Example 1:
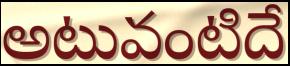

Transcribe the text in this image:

అటువంటిదే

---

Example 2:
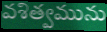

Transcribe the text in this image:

వశిత్వమును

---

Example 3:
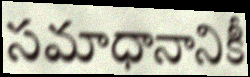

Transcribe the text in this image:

సమాధానానికీ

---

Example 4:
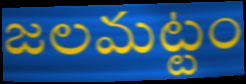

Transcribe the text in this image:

జలమట్టం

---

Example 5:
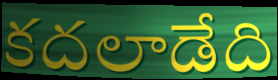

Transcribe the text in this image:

కదలాడేది